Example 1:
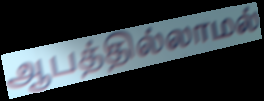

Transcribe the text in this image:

ஆபத்தில்லாமல்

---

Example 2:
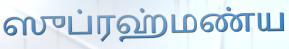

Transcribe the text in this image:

ஸுப்ரஹ்மண்ய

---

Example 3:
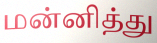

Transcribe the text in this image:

மன்னித்து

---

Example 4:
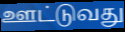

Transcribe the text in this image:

ஊட்டுவது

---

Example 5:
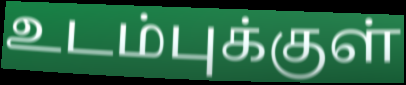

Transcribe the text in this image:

உடம்புக்குள்